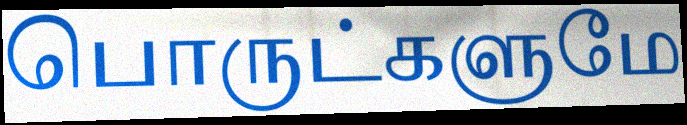
பொருட்களுமே